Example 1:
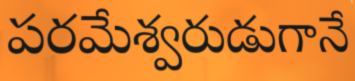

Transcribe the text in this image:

పరమేశ్వరుడుగానే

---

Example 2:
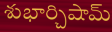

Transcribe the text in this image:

శుభార్చిషామ్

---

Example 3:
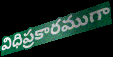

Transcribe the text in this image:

విధిప్రకారముగా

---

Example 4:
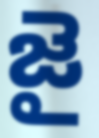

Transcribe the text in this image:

జై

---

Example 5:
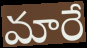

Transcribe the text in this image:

మారే